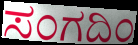
ಸಂಗದಿಂ